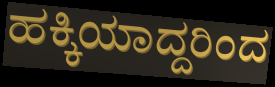
ಹಕ್ಕಿಯಾದ್ದರಿಂದ